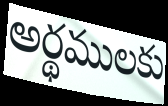
అర్థములకు